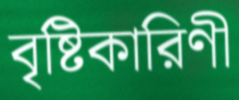
বৃষ্টিকারিণী